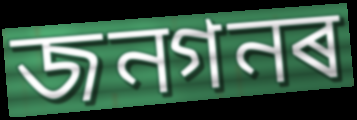
জনগনৰ